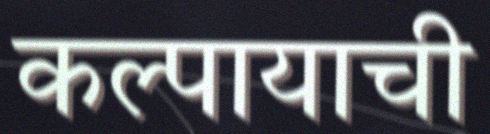
कल्पायाची